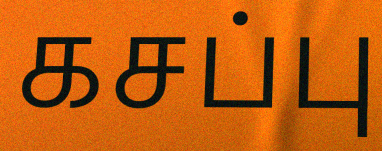
கசப்பு